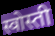
स्वोस्ती